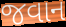
જવાન